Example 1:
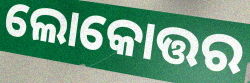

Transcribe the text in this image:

ଲୋକୋତ୍ତର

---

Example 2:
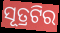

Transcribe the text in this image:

ସୂତ୍ରଟିର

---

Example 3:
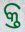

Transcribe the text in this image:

କ୍ତ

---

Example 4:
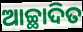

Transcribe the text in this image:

ଆଚ୍ଛାଦିତ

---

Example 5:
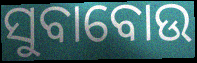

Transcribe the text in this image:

ସୁବାବୋଉ